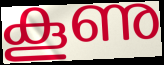
കൂണു